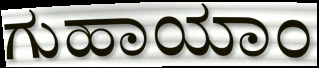
ಗುಹಾಯಾಂ